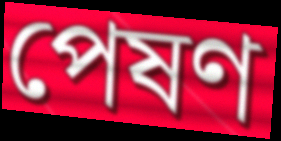
পেষণ